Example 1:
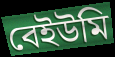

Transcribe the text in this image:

বেইউমি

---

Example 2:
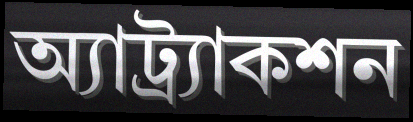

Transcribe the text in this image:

অ্যাট্র্যাকশন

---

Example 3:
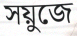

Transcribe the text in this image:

সয়ুজে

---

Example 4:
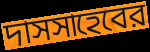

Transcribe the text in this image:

দাসসাহেবের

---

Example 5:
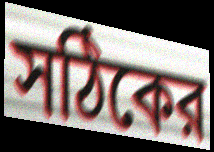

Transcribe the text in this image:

সঠিকের